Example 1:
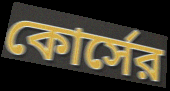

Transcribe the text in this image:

কোর্সের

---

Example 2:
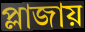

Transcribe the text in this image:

প্লাজায়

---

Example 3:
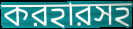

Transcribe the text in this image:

করহারসহ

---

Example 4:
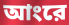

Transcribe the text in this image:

আংরে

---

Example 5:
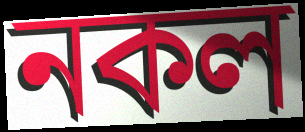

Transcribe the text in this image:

নকল